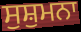
ਸੁਸ਼ੁਮਨਾ